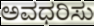
ಅವಧರಿಸು